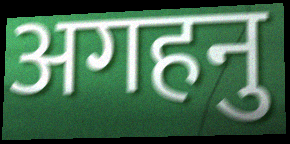
अगहनु